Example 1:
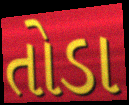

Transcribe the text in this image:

તોડા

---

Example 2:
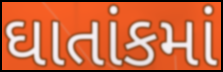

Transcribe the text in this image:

ઘાતાંકમાં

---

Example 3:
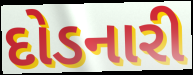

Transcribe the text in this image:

દોડનારી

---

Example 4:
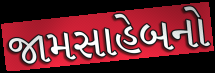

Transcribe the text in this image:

જામસાહેબનો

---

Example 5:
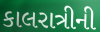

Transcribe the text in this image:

કાલરાત્રીની